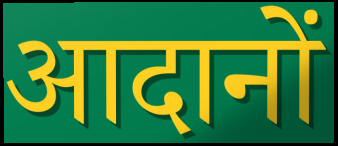
आदानों